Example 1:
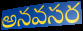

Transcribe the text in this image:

అనవసర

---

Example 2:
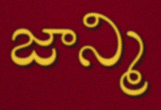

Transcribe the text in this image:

జాన్మి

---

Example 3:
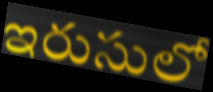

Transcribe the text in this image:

ఇరుసులో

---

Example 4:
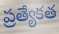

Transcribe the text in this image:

ప్రత్యేకత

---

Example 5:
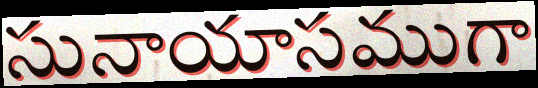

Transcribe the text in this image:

సునాయాసముగా